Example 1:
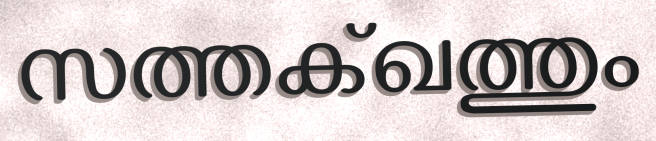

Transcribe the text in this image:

സത്തക്ഖത്തും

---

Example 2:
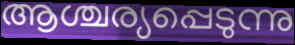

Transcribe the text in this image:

ആശ്ചര്യപ്പെടുന്നു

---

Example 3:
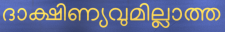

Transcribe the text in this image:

ദാക്ഷിണ്യവുമില്ലാത്ത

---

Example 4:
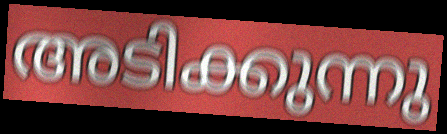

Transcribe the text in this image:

അടിക്കുന്നു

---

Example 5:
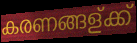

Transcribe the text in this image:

കരണങ്ങള്ക്ക്